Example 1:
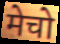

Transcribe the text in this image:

मेचो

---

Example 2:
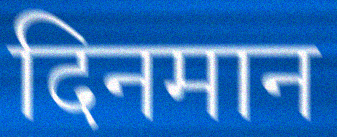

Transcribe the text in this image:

दिनमान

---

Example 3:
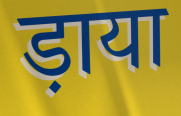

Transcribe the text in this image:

ड़ाया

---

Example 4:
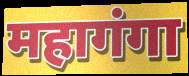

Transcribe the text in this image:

महागंगा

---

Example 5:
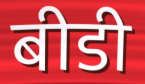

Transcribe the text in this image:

बीडी